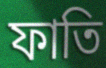
ফাতি